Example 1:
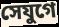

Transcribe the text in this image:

সেযুগে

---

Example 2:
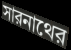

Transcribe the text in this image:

সারনাথের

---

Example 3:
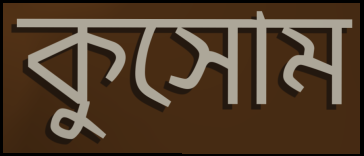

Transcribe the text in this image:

কুসোম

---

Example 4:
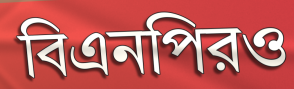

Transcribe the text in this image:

বিএনপিরও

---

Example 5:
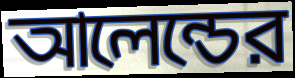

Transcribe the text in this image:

আলেন্ডের